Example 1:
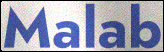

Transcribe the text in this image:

Malab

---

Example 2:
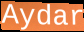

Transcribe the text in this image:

Aydar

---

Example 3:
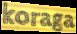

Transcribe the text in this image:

koraga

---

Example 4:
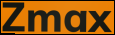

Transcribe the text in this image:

Zmax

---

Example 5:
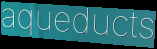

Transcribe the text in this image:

aqueducts